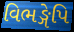
વિભઙ્ગેપિ